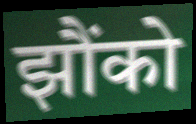
झौंको